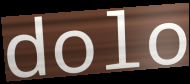
dolo